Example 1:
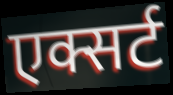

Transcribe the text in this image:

एक्सर्ट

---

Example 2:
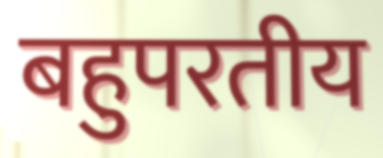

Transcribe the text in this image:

बहुपरतीय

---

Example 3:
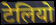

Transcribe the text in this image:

टेलियो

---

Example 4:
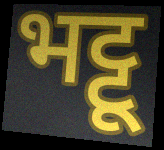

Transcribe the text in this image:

भट्टू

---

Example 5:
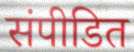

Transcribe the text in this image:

संपीडित